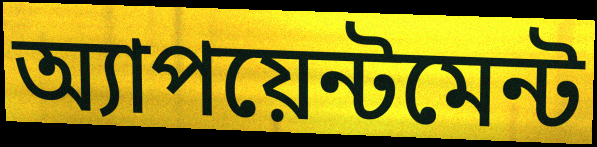
অ্যাপয়েন্টমেন্ট